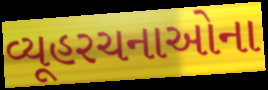
વ્યૂહરચનાઓના